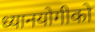
ध्यानयोगीको